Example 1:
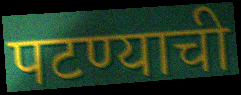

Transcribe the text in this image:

पटण्याची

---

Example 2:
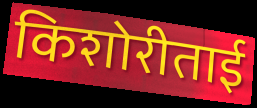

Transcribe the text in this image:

किशोरीताई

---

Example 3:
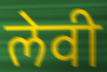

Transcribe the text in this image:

लेवी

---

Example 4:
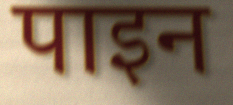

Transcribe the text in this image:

पाइन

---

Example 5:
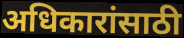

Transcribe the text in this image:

अधिकारांसाठी